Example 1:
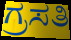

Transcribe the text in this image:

ಗ್ರಸತಿ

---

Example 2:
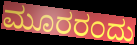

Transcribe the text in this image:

ಮೂರರಂದು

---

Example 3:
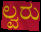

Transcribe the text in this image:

ಲ್ವರು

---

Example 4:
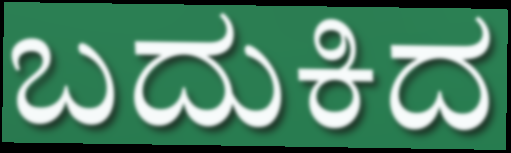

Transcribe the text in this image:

ಬದುಕಿದ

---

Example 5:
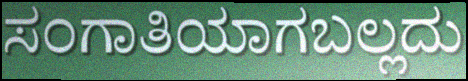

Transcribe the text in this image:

ಸಂಗಾತಿಯಾಗಬಲ್ಲದು